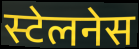
स्टेलनेस